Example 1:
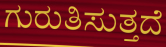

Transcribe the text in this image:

ಗುರುತಿಸುತ್ತದೆ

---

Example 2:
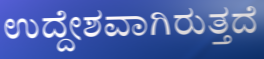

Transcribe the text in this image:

ಉದ್ದೇಶವಾಗಿರುತ್ತದೆ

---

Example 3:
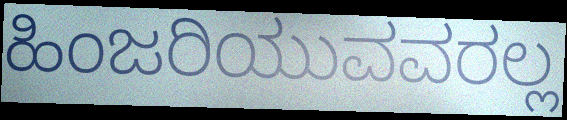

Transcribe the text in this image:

ಹಿಂಜರಿಯುವವರಲ್ಲ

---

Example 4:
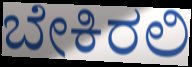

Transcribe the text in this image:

ಬೇಕಿರಲಿ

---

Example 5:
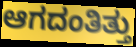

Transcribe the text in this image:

ಆಗದಂತಿತ್ತು